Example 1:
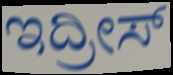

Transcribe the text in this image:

ಇದ್ರೀಸ್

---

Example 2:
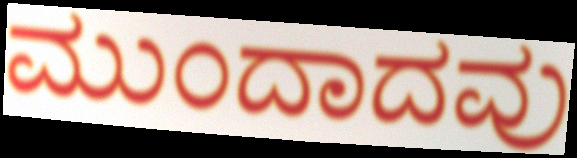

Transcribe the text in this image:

ಮುಂದಾದವು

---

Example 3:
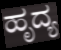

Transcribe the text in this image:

ಹೃದ್ಯ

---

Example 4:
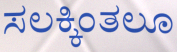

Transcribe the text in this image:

ಸಲಕ್ಕಿಂತಲೂ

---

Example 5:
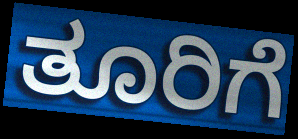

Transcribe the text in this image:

ತೂರಿಗೆ